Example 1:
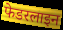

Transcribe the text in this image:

फेडरलाइन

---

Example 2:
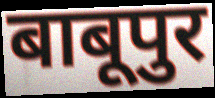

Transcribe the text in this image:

बाबूपुर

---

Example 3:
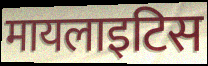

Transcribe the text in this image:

मायलाइटिस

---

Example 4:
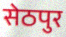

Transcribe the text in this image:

सेठपुर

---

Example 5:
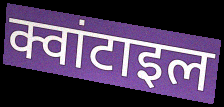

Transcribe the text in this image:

क्वांटाइल